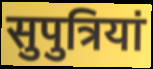
सुपुत्रियां